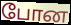
போன